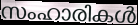
സംഹാരികൾ